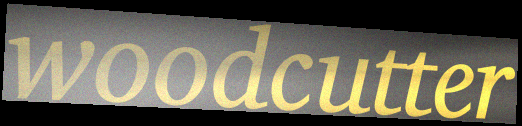
woodcutter